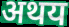
अथय